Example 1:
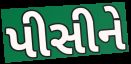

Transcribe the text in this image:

પીસીને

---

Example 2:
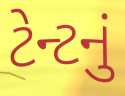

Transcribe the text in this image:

ટેન્ટનું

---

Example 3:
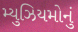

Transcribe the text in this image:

મ્યુઝિયમોનું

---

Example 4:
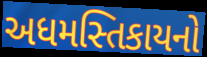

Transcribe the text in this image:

અધમસ્તિકાયનો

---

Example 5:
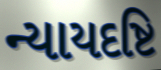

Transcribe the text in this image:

ન્યાયદષ્ટિ